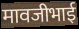
मावजीभाई